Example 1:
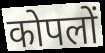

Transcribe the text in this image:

कोपलों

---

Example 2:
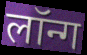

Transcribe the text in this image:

लॉन्ग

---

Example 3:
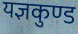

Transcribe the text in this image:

यज्ञकुण्ड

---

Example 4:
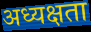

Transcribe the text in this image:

अध्यक्षता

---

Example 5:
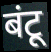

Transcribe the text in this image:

बंटू